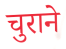
चुराने